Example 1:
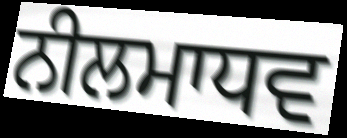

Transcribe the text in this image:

ਨੀਲਮਾਧਵ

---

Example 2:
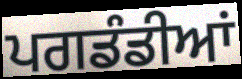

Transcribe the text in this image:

ਪਗਡੰਡੀਆਂ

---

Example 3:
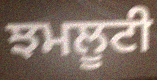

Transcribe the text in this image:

ਝਮਲੂਟੀ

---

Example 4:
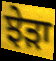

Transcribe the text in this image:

ਝੇੜਾ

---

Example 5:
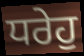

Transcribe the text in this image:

ਧਰੇਹੁ